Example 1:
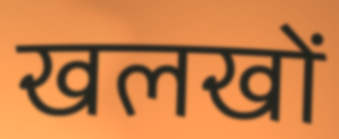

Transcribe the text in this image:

खलखों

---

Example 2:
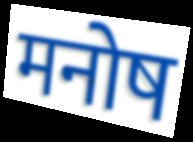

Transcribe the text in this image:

मनोष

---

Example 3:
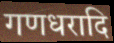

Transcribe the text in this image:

गणधरादि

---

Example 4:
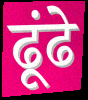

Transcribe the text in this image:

ढूंढे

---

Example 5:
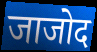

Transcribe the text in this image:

जाजोद